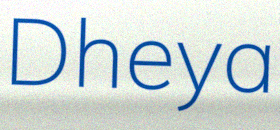
Dheya